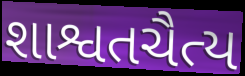
શાશ્વતચૈત્ય